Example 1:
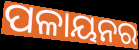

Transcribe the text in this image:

ପଳାୟନର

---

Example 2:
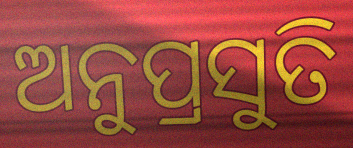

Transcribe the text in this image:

ଅନୁପ୍ରସୁତି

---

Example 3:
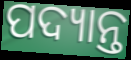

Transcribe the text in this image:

ପଦ୍ୟାନ୍ତ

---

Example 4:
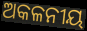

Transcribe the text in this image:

ଅକଳନୀୟ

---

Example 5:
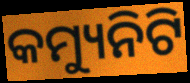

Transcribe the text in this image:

କମ୍ୟୁନିଟି